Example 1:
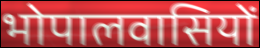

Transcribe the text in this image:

भोपालवासियों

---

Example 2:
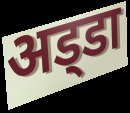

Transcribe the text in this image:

अड्‌डा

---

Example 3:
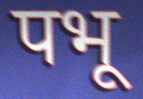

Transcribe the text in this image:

पभू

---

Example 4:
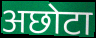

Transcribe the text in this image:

अछोटा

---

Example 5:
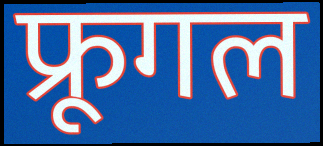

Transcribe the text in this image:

फ्रूगल